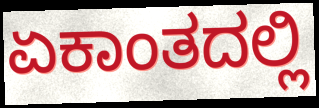
ಏಕಾಂತದಲ್ಲಿ